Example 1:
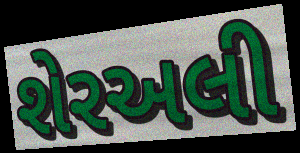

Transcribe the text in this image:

શેરઅલી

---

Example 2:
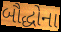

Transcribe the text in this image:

બૌદ્ધોના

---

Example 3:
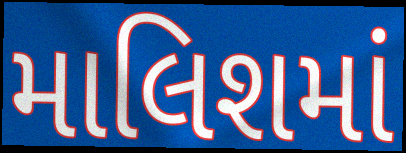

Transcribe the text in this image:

માલિશમાં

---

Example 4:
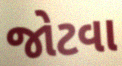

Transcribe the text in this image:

જોટવા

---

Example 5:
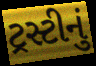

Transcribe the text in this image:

ટ્રસ્ટીનું